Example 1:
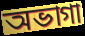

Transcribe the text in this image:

অভাগা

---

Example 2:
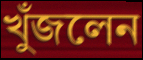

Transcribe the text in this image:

খুঁজলেন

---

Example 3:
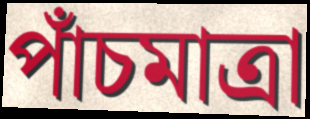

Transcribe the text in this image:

পাঁচমাত্রা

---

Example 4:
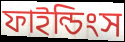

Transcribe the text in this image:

ফাইন্ডিংস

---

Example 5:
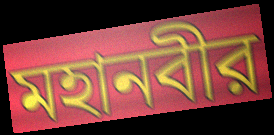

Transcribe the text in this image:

মহানবীর